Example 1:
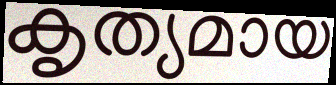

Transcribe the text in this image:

കൃത്യമായ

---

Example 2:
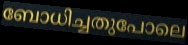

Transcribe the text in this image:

ബോധിച്ചതുപോലെ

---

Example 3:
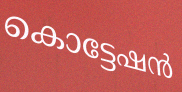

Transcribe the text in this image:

കൊട്ടേഷൻ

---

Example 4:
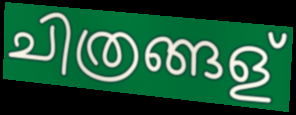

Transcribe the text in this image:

ചിത്രങ്ങള്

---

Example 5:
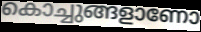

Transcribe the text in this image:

കൊച്ചുങ്ങളാണോ